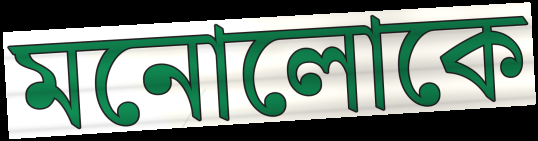
মনোলোকে